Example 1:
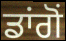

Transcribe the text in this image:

ਡਾਂਗੋਂ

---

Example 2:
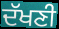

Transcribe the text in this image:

ਦੱਖਣੀ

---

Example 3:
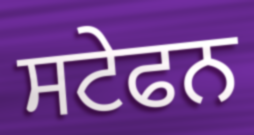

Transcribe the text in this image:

ਸਟੇਫਨ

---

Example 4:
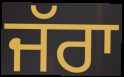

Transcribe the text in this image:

ਜੱਰਾ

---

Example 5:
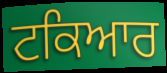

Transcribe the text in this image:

ਟਕਿਆਰ